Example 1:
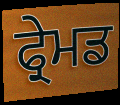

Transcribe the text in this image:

ਫ੍ਰੇਮਡ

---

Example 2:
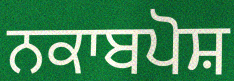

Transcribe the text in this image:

ਨਕਾਬਪੋਸ਼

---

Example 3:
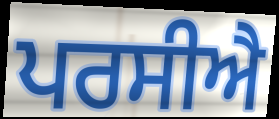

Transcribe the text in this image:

ਪਰਸੀਐ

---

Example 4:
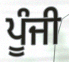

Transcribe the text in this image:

ਪੂੰਜੀ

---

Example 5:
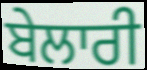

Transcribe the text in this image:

ਬੇਲਾਰੀ